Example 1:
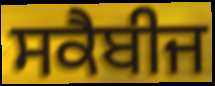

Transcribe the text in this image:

ਸਕੈਬੀਜ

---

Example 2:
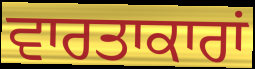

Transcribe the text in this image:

ਵਾਰਤਾਕਾਰਾਂ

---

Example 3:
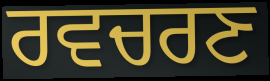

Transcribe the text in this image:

ਰਵਚਰਣ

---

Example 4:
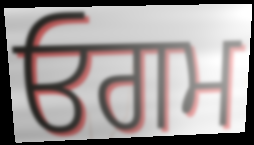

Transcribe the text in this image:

ਓਗਮ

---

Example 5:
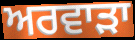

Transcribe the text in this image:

ਅਰਵਾੜਾ